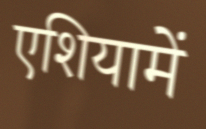
एशियामें